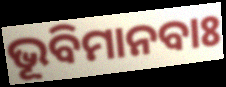
ଭୂବିମାନବାଃ